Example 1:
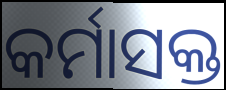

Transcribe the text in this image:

କର୍ମାସକ୍ତ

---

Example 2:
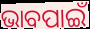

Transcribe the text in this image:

ଭାବପାଇଁ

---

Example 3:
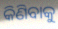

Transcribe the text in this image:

କିଣିବାକୁ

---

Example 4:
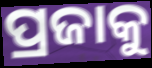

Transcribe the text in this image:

ପ୍ରଜାକୁ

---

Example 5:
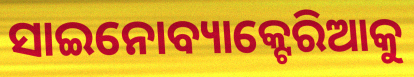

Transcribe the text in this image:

ସାଇନୋବ୍ୟାକ୍ଟେରିଆକୁ